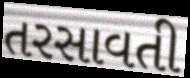
તરસાવતી